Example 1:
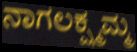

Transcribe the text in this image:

ನಾಗಲಕ್ಷ್ಮಮ್ಮ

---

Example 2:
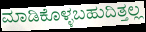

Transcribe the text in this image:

ಮಾಡಿಕೊಳ್ಳಬಹುದಿತ್ತಲ್ಲ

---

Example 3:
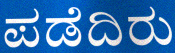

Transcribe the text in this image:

ಪಡೆದಿರು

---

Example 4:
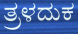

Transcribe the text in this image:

ತ್ರಳದುಕ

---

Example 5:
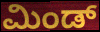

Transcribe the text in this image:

ಮಿಂಡ್